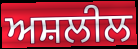
ਅਸ਼ਲੀਲ